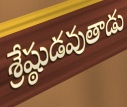
శ్రేష్ఠుడవుతాడు